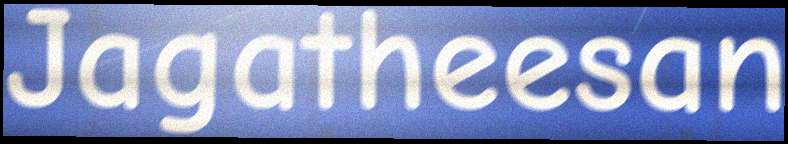
Jagatheesan